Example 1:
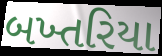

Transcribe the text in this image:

બખ્તરિયા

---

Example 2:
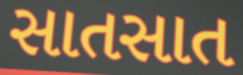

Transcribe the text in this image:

સાતસાત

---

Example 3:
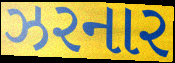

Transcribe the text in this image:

ઝરનાર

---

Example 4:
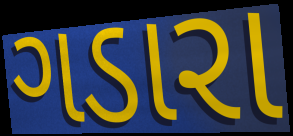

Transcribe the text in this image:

ગડારા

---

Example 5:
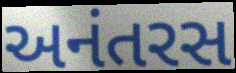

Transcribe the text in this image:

અનંતરસ